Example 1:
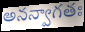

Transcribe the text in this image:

అనన్వాగతః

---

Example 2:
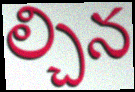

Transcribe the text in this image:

ల్చిన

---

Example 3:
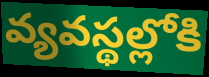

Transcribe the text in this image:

వ్యవస్థల్లోకి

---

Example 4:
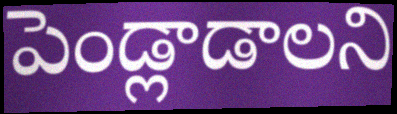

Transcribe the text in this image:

పెండ్లాడాలని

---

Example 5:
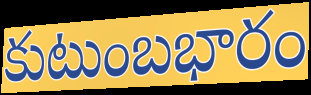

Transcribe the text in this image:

కుటుంబభారం